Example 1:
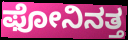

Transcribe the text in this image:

ಫೋನಿನತ್ತ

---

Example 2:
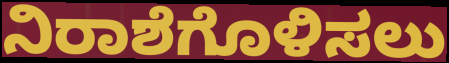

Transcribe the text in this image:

ನಿರಾಶೆಗೊಳಿಸಲು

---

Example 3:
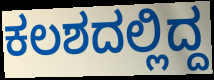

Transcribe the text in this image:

ಕಲಶದಲ್ಲಿದ್ದ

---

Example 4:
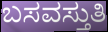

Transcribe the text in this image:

ಬಸವಸ್ತುತಿ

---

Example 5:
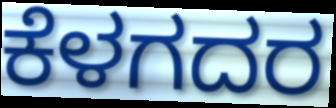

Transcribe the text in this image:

ಕೆಳಗದರ